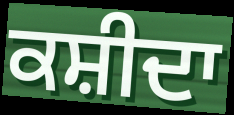
ਕਸ਼ੀਦਾ